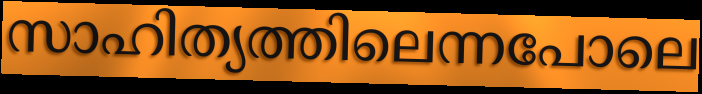
സാഹിത്യത്തിലെന്നപോലെ